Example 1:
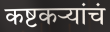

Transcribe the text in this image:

कष्टकऱ्यांचं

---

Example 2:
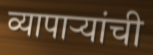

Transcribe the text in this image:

व्यापाऱ्यांची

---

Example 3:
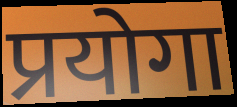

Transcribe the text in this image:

प्रयोगा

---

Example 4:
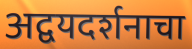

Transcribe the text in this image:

अद्वयदर्शनाचा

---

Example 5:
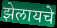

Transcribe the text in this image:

झेलायचे